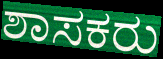
ಶಾಸಕರು